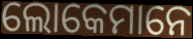
ଲୋକେମାନେ